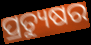
ପ୍ରତ୍ୟୁଷର